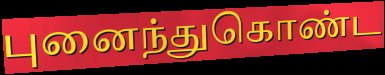
புனைந்துகொண்ட